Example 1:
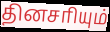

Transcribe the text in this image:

தினசரியும்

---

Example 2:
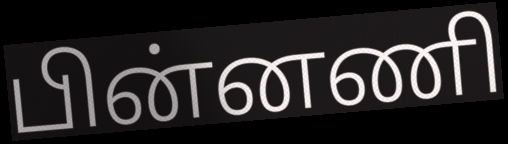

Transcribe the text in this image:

பின்னணி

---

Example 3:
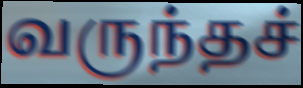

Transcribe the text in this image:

வருந்தச்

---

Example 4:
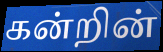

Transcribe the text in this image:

கன்றின்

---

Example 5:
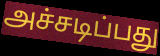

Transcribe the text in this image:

அச்சடிப்பது